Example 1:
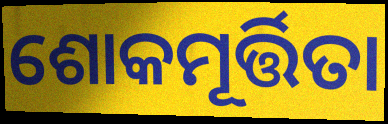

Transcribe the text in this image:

ଶୋକମୂର୍ତ୍ତିତା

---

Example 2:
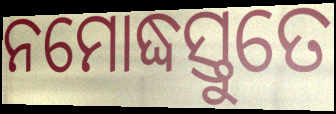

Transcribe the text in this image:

ନମୋଦ୍ଧସ୍ତୁତେ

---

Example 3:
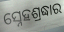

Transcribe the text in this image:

ସ୍ନେହଶ୍ରଦ୍ଧାର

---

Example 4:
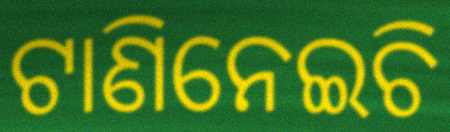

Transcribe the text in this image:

ଟାଣିନେଇଚି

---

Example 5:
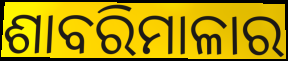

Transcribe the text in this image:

ଶାବରିମାଳାର